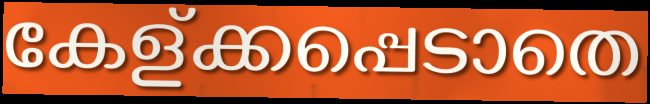
കേള്ക്കപ്പെടാതെ